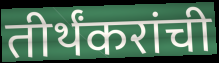
तीर्थंकरांची